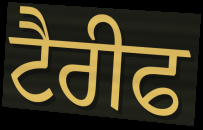
ਟੈਰੀਫ